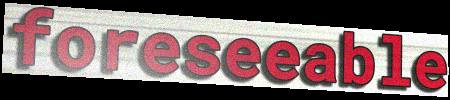
foreseeable